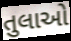
તુલાઓ